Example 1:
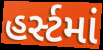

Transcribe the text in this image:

હર્સ્ટમાં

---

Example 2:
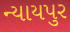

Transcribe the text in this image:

ન્યાયપુર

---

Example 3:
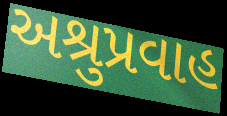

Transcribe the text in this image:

અશ્રુપ્રવાહ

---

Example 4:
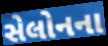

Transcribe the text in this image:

સેલોનના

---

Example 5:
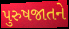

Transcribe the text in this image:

પુરુષજાતને